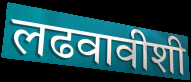
लढवावीशी